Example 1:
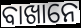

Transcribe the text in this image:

ବାଖାନେ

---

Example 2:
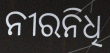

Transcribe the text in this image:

ନୀରନିଧି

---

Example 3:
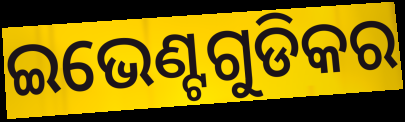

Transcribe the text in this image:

ଇଭେଣ୍ଟଗୁଡିକର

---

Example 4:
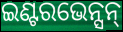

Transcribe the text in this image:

ଇଣ୍ଟରଭେନ୍ସନ୍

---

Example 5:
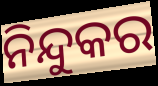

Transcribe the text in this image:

ନିନ୍ଦୁକର